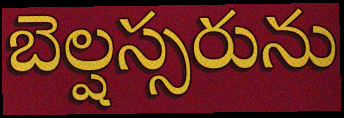
బెల్షస్సరును